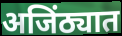
अजिंठ्यात